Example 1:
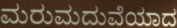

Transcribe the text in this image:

ಮರುಮದುವೆಯಾದ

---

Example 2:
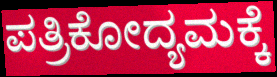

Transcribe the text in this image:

ಪತ್ರಿಕೋದ್ಯಮಕ್ಕೆ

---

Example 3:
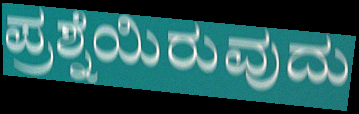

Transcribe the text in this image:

ಪ್ರಶ್ನೆಯಿರುವುದು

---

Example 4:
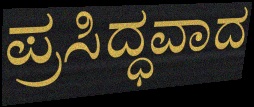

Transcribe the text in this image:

ಪ್ರಸಿದ್ಧವಾದ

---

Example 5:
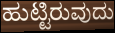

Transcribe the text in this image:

ಹುಟ್ಟಿರುವುದು